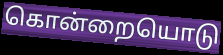
கொன்றையொடு